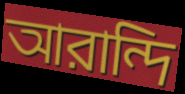
আরান্দি